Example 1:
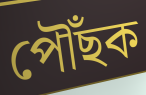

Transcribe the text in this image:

পৌঁছক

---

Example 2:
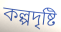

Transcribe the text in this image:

কল্পদৃষ্টি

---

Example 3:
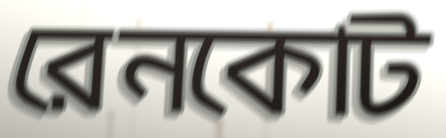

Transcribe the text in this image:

রেনকোট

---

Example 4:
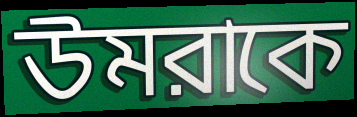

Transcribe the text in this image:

উমরাকে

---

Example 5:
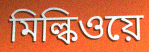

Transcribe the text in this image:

মিল্কিওয়ে